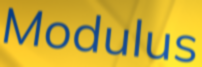
Modulus